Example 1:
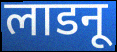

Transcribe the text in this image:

लाडनू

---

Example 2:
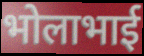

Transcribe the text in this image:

भोलाभाई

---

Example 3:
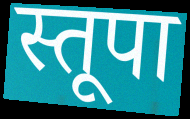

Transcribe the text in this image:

स्तूपा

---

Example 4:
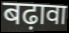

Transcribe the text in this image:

बढ़ावा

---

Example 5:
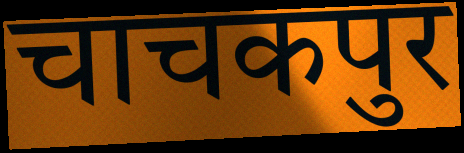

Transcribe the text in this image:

चाचकपुर